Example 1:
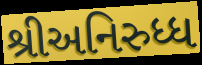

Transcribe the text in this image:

શ્રીઅનિરુધ્ધ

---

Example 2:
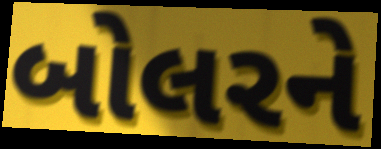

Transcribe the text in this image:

બોલરને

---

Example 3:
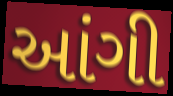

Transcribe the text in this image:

આંગી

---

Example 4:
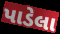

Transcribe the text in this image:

પાડેલા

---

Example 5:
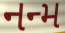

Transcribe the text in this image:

નન્મ